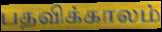
பதவிக்காலம்